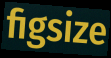
figsize